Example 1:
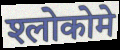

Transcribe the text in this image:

श्लोकोमे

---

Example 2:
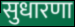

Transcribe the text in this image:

सुधारणा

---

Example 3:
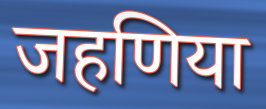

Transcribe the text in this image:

जहणिया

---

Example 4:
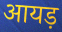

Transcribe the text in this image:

आयड़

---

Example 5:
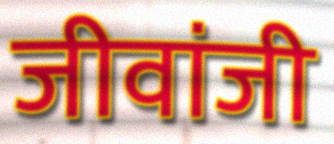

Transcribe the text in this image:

जीवांजी